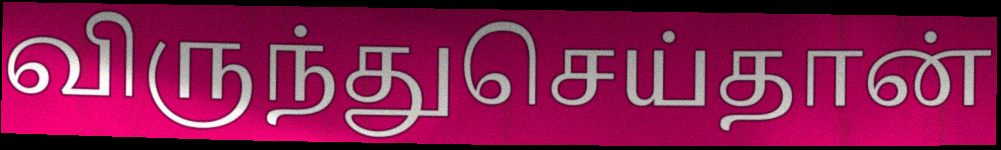
விருந்துசெய்தான்